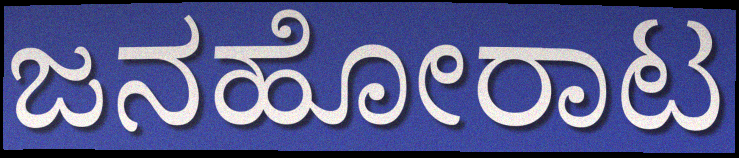
ಜನಹೋರಾಟ